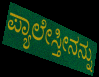
ಪ್ಯಾಲೇಸ್ತೀನನ್ನು